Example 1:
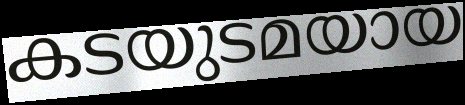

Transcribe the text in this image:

കടയുടമയായ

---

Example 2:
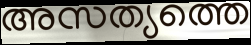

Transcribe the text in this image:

അസത്യത്തെ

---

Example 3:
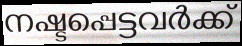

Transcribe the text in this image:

നഷ്ടപ്പെട്ടവർക്ക്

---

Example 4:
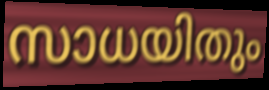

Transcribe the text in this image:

സാധയിതും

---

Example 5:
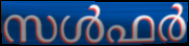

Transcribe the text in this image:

സൾഫർ